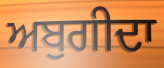
ਅਬੁਗੀਦਾ